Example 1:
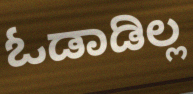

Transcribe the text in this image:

ಓಡಾಡಿಲ್ಲ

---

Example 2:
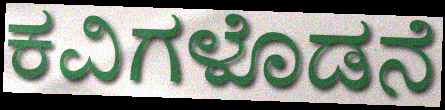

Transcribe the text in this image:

ಕವಿಗಳೊಡನೆ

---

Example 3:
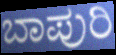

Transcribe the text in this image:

ಬಾಪುರಿ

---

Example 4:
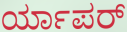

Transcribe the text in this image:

ರ್ಯಾಪರ್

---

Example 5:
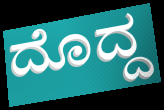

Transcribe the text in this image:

ದೊದ್ದ